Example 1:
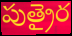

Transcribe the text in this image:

పుత్రైర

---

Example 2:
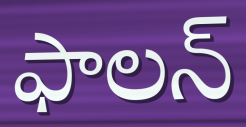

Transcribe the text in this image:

ఫాలన్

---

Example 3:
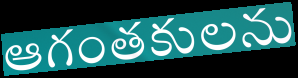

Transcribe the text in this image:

ఆగంతకులను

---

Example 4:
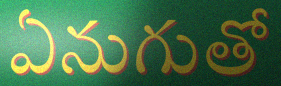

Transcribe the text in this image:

ఏనుగుతో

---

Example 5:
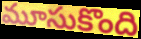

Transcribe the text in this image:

మూసుకొంది